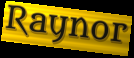
Raynor